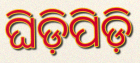
ଘିଡ଼ିପିଡ଼ି